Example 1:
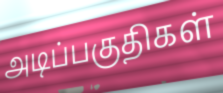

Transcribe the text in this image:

அடிப்பகுதிகள்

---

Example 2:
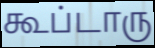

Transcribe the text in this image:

கூப்டாரு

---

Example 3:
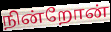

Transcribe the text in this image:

நின்றோன்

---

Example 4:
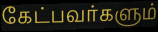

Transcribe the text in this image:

கேட்பவர்களும்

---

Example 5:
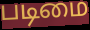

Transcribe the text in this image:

படிமை